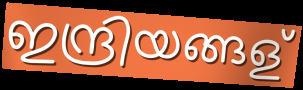
ഇന്ദ്രിയങ്ങള്